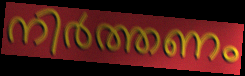
നിർത്തണം